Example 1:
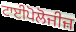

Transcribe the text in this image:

ਟਾਈਪੋਲੋਜੀਜ਼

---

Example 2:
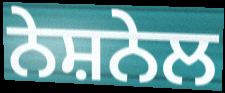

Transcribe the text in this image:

ਨੇਸ਼ਨੇਲ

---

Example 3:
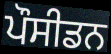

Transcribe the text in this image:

ਪੌਸੀਡਨ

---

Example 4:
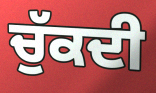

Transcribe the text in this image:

ਚੁੱਕਦੀ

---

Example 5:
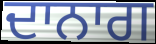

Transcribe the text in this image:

ਦਾਨਾਗ